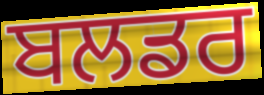
ਬਲਡਰ